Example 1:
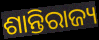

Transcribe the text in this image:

ଶାନ୍ତିରାଜ୍ୟ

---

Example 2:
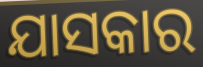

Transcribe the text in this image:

ଯାସକାର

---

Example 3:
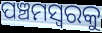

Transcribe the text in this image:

ପଞ୍ଚମସ୍ୱରକୁ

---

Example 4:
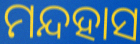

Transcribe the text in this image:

ମନ୍ଦହାସ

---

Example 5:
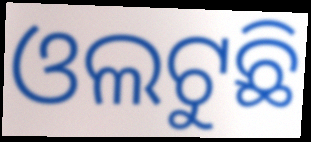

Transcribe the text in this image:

ଓଲଟୁଛି